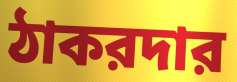
ঠাকরদার